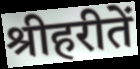
श्रीहरीतें